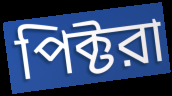
পিক্টরা